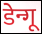
डेन्गू